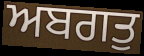
ਅਬਗਤੁ